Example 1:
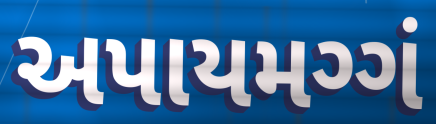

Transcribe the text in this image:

અપાયમગ્ગં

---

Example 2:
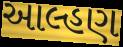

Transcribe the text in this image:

આલ્હણ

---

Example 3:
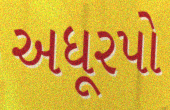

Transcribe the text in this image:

અધૂરપો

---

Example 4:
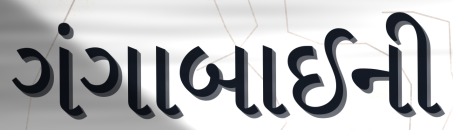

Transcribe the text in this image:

ગંગાબાઈની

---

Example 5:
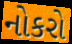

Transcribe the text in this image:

નોકરો